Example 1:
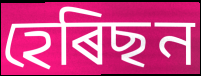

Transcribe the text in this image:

হেৰিছন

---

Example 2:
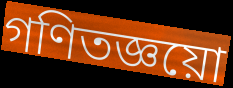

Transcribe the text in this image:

গণিতজ্ঞয়ো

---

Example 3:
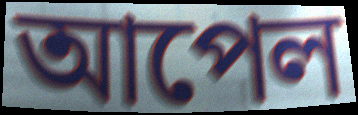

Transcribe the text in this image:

আপেল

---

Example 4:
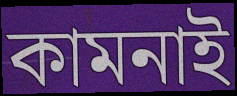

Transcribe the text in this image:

কামনাই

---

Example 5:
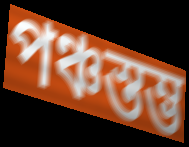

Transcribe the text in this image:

পঞ্চস্তম্ভ